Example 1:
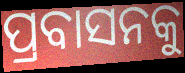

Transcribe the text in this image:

ପ୍ରବାସନକୁ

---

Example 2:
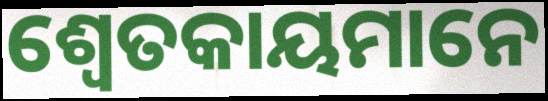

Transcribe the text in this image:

ଶ୍ୱେତକାୟମାନେ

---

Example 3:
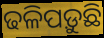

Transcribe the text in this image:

ଢଳିପଡ଼ୁଛି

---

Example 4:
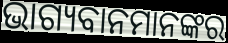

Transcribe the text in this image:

ଭାଗ୍ୟବାନମାନଙ୍କର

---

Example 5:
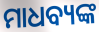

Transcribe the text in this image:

ମାଧବ୍ୟଙ୍କ